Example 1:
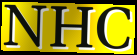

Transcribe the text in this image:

NHC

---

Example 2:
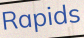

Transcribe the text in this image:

Rapids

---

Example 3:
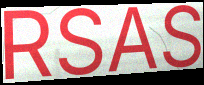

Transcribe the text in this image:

RSAS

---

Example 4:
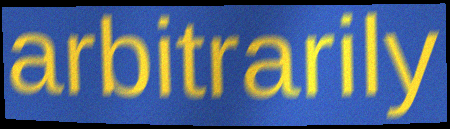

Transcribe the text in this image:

arbitrarily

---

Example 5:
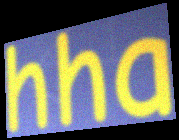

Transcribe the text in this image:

hha